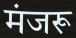
मंजरू